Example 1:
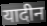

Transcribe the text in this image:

यादीन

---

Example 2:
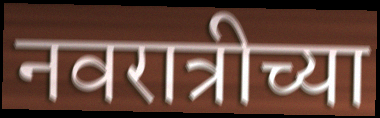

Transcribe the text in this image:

नवरात्रीच्या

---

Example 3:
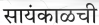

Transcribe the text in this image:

सायंकाळची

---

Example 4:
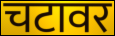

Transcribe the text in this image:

चटावर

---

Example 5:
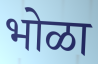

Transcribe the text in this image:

भोळा